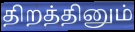
திறத்தினும்